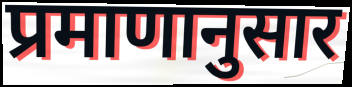
प्रमाणानुसार